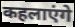
कहलाएंगे